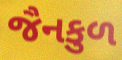
જૈનકુળ